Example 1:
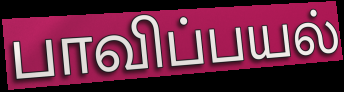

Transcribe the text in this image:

பாவிப்பயல்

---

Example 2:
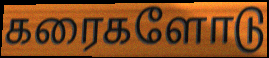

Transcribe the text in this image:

கரைகளோடு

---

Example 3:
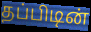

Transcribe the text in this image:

தப்பிடின்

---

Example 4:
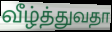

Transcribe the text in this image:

வீழ்த்துவதா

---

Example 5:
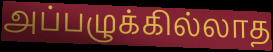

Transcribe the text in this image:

அப்பழுக்கில்லாத